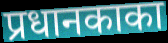
प्रधानकाका